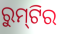
ରୁମ୍‌ଟିର